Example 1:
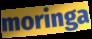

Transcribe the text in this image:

moringa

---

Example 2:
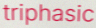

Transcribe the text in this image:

triphasic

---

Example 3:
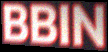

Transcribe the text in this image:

BBIN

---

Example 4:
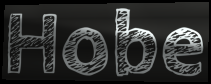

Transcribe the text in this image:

Hobe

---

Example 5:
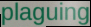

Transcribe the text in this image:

plaguing